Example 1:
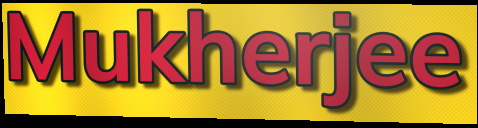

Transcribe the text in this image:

Mukherjee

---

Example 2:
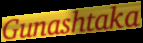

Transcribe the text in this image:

Gunashtaka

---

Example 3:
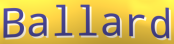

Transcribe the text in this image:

Ballard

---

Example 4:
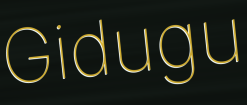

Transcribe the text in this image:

Gidugu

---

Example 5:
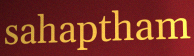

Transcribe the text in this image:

sahaptham